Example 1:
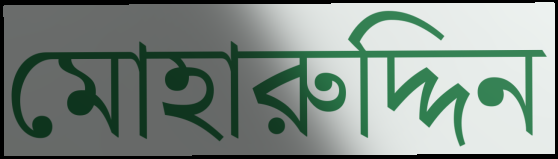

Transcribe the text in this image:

মোহারুদ্দিন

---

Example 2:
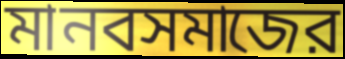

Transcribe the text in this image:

মানবসমাজের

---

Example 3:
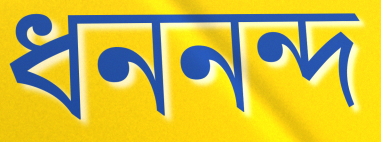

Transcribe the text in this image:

ধননন্দ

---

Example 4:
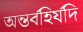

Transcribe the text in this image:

অন্তর্বহির্যদি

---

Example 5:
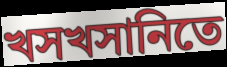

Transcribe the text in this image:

খসখসানিতে